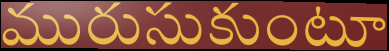
మురుసుకుంటూ